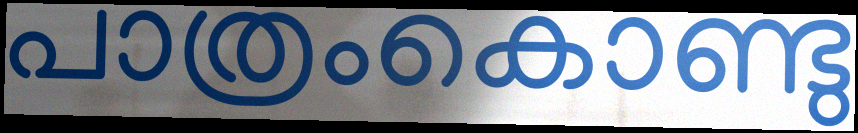
പാത്രംകൊണ്ടു